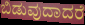
ಬಿಡುವುದಾದರೆ